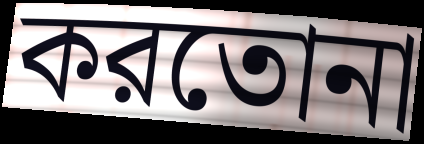
করতোনা